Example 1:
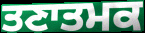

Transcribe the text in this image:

ਤਣਾਤਮਕ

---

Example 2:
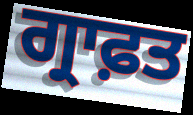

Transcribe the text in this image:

ਗ੍ਰਾਫ਼ਤ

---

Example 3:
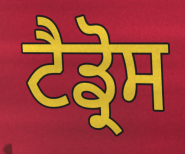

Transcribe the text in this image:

ਟੈਡ੍ਰੋਸ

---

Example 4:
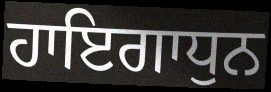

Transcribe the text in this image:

ਹਾਇਗਾਧੁਨ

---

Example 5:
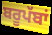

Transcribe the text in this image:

ਬਰੂਪੱਬਾਂ